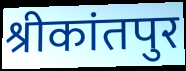
श्रीकांतपुर